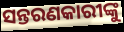
ସନ୍ତରଣକାରୀଙ୍କୁ